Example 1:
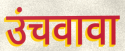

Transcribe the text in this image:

उंचवावा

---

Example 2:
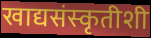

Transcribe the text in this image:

खाद्यसंस्कृतीशी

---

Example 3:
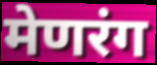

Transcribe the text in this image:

मेणरंग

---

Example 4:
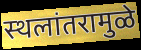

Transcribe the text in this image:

स्थलांतरामुळे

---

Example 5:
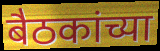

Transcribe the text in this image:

बैठकांच्या